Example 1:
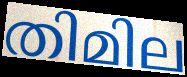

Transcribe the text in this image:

തിമില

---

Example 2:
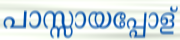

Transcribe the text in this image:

പാസ്സായപ്പോള്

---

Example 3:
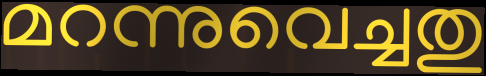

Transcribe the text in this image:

മറന്നുവെച്ചതു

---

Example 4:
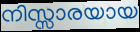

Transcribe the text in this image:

നിസ്സാരയായ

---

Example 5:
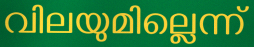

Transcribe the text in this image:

വിലയുമില്ലെന്ന്